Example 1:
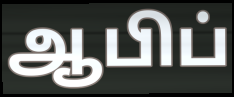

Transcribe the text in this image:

ஆபிப்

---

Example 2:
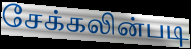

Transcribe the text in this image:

சேக்கலின்படி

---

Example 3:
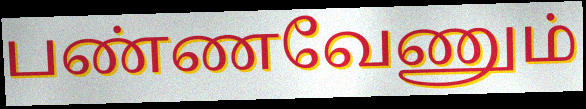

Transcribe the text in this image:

பண்ணவேணும்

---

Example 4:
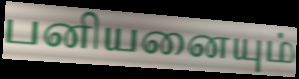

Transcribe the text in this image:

பனியனையும்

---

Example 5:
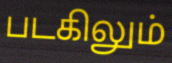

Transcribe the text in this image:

படகிலும்